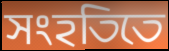
সংহতিতে